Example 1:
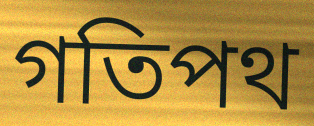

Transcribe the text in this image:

গতিপথ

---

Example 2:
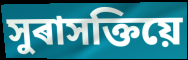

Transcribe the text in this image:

সুৰাসক্তিয়ে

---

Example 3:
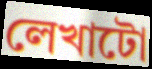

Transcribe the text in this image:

লেখাটো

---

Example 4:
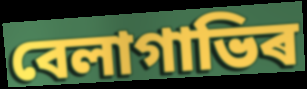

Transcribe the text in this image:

বেলাগাভিৰ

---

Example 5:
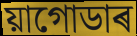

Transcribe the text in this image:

য়াগোডাৰ